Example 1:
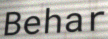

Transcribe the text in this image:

Behar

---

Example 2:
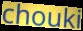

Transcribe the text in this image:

chouki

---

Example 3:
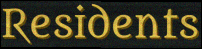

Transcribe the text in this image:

Residents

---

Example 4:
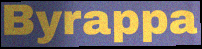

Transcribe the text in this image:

Byrappa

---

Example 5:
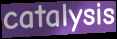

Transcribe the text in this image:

catalysis